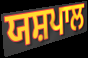
ਯਸ਼ਪਾਲ